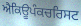
ਐਕਿਊਪੰਕਚਰਿਸਟ